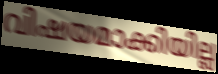
വിഷയമാക്കിയില്ല